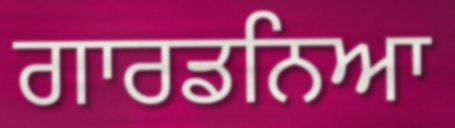
ਗਾਰਡਨਿਆ